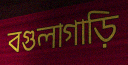
বগুলাগাড়ি